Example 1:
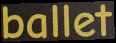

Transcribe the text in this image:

ballet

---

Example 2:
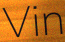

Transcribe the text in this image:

Vin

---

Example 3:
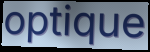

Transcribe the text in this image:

optique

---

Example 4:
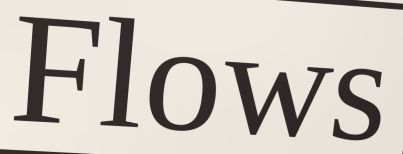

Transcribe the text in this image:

Flows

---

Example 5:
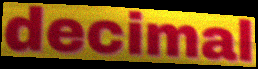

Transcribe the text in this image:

decimal